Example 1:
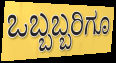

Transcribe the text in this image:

ಒಬ್ಬಬ್ಬರಿಗೂ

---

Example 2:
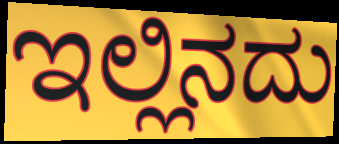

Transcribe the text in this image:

ಇಲ್ಲಿನದು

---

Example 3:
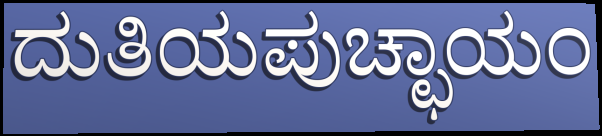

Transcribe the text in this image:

ದುತಿಯಪುಚ್ಛಾಯಂ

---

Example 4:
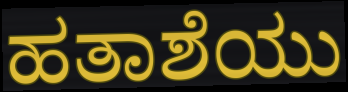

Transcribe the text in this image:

ಹತಾಶೆಯು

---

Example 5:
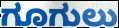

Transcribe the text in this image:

ಗೂಗುಲು